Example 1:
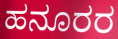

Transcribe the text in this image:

ಹನೂರರ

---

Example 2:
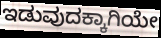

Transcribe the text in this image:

ಇಡುವುದಕ್ಕಾಗಿಯೇ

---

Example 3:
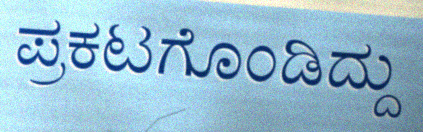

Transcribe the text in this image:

ಪ್ರಕಟಗೊಂಡಿದ್ದು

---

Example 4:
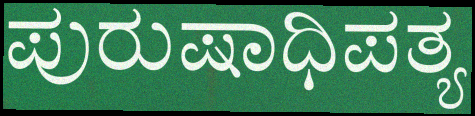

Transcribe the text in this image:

ಪುರುಷಾಧಿಪತ್ಯ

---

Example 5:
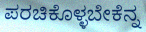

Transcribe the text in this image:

ಪರಚಿಕೊಳ್ಳಬೇಕೆನ್ನ